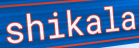
shikala